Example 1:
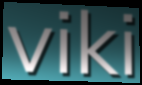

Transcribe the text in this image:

viki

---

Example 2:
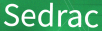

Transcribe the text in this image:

Sedrac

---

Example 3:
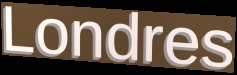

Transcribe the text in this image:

Londres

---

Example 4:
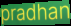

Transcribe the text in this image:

pradhan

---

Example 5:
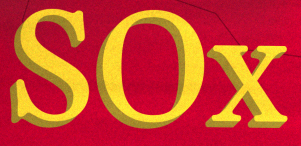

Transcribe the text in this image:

SOx